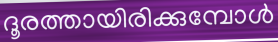
ദൂരത്തായിരിക്കുമ്പോൾ